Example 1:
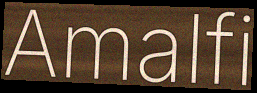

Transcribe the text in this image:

Amalfi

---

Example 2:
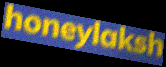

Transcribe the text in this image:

honeylaksh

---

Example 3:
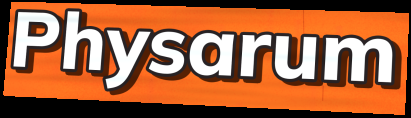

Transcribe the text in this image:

Physarum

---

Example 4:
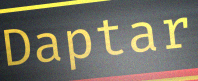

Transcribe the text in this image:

Daptar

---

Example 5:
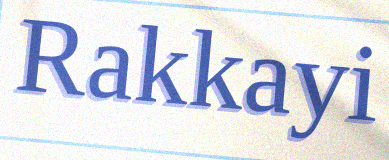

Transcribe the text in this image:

Rakkayi